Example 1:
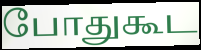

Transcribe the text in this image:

போதுகூட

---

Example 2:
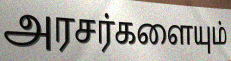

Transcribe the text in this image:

அரசர்களையும்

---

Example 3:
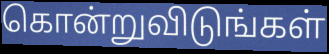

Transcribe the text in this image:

கொன்றுவிடுங்கள்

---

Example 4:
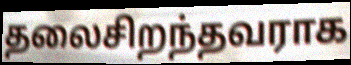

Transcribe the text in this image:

தலைசிறந்தவராக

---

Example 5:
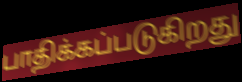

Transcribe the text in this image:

பாதிக்கப்படுகிறது